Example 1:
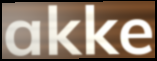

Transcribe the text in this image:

akke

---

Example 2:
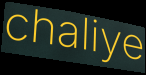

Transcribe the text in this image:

chaliye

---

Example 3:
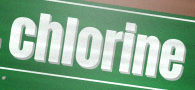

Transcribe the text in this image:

chlorine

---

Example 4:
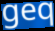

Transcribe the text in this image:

geq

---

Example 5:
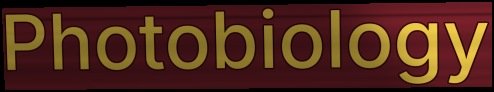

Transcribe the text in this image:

Photobiology